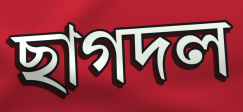
ছাগদল